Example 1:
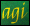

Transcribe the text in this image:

agi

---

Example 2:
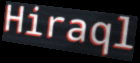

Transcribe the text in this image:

Hiraql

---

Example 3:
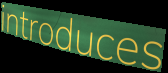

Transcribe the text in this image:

introduces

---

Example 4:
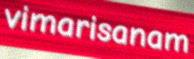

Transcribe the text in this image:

vimarisanam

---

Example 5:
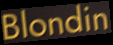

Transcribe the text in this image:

Blondin